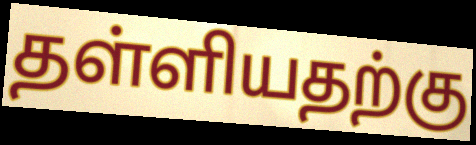
தள்ளியதற்கு